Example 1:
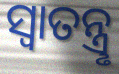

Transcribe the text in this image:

ସ୍ବାତନ୍ତ୍ରୢ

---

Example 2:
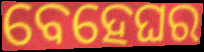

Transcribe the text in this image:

ବେହେଘର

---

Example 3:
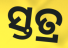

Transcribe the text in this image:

ସ୍ତତ୍ର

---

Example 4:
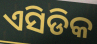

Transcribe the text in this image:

ଏସିଡିକ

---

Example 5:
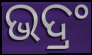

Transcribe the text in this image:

ଭଦ୍ରଂ